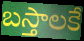
బస్తాలకే